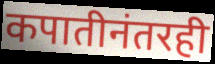
कपातीनंतरही